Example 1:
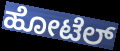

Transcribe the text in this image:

ಹೋಟೆಲ್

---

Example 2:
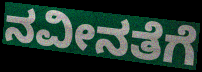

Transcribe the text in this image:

ನವೀನತೆಗೆ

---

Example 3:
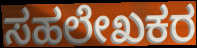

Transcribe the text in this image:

ಸಹಲೇಖಕರ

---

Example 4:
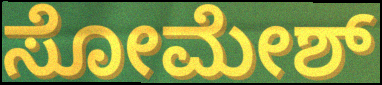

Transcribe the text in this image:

ಸೋಮೇಶ್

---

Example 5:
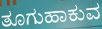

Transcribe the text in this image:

ತೂಗುಹಾಕುವ